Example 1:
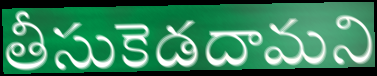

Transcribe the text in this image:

తీసుకెడదామని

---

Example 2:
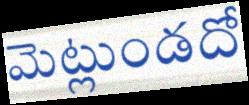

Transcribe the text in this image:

మెట్లుండదో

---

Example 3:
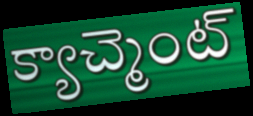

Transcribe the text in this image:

క్యాచ్మెంట్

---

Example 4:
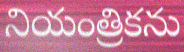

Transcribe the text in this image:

నియంత్రికను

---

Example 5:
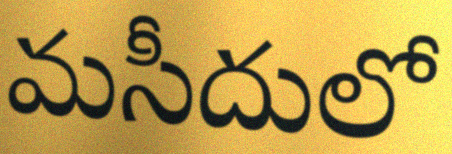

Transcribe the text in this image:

మసీదులో